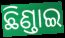
ଛିଣ୍ଡାଇ